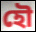
হৌ